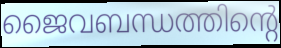
ജൈവബന്ധത്തിന്റെ